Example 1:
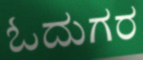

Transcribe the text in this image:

ಓದುಗರ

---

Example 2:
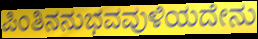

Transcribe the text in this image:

ಪಿಂತಿನನುಭವವುಳಿಯದೇನು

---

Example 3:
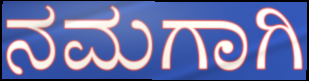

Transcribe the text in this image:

ನಮಗಾಗಿ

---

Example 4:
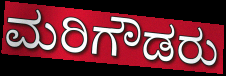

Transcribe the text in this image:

ಮರಿಗೌಡರು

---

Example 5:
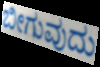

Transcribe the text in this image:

ಬೀಗುವುದು